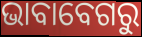
ଭାବାବେଗରୁ